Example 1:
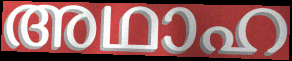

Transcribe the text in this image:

അഥാഹ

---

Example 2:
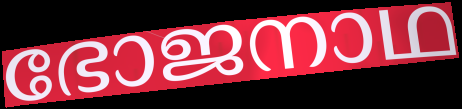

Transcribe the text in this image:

ഭോജനാഥ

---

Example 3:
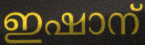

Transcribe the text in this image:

ഇഷാന്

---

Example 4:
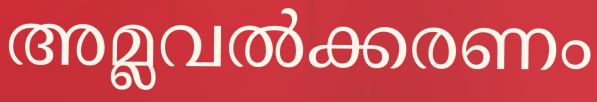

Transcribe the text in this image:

അമ്ലവൽക്കരണം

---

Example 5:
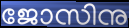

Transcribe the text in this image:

ജോസിനു